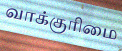
வாக்குரிமை